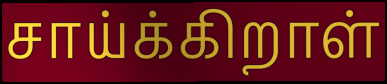
சாய்க்கிறாள்